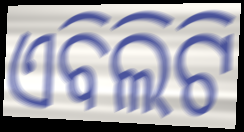
ଏବିଲିଟି